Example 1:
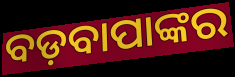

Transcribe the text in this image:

ବଡ଼ବାପାଙ୍କର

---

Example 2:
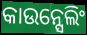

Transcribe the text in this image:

କାଉନ୍ସେଲିଂ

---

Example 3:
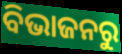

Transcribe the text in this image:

ବିଭାଜନରୁ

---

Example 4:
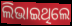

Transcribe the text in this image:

ଲିଭାଇଥିଲେ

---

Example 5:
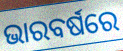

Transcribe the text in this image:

ଭାରବର୍ଷରେ